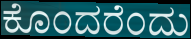
ಕೊಂದರೆಂದು